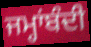
ਜਮ੍ਹਾਂਬੰਦੀ